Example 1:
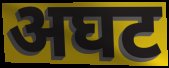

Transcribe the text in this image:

अघट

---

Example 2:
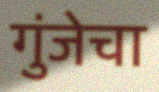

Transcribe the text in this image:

गुंजेचा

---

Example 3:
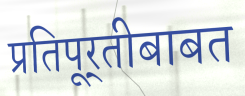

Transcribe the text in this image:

प्रतिपूर्तीबाबत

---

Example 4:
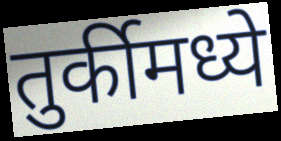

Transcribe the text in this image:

तुर्कीमध्ये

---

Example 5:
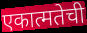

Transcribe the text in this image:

एकात्मतेची